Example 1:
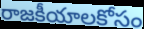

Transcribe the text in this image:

రాజకీయాలకోసం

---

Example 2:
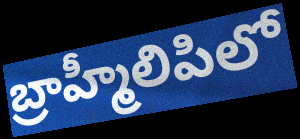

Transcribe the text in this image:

బ్రాహ్మీలిపిలో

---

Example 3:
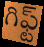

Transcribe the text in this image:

గిఫ్ట్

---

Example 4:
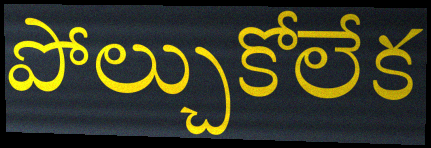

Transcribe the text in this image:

పోల్చుకోలేక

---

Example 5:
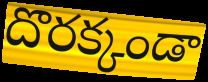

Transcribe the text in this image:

దొరక్కండా